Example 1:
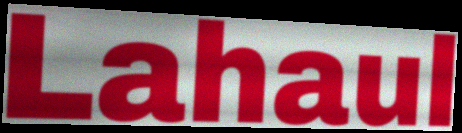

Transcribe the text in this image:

Lahaul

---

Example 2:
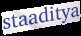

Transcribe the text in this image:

staaditya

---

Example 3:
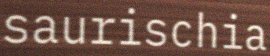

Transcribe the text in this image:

saurischia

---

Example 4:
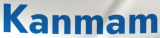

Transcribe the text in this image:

Kanmam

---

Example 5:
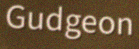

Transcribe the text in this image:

Gudgeon